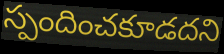
స్పందించకూడదని